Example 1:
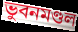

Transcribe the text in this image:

ভুবনমণ্ডল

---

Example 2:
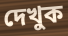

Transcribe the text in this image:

দেখুক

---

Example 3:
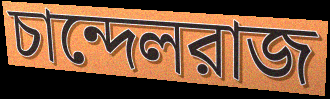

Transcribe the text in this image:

চান্দেলরাজ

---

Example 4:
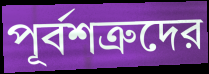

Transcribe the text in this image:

পূর্বশত্রুদের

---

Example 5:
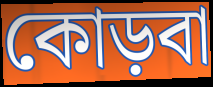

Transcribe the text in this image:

কোড়বা